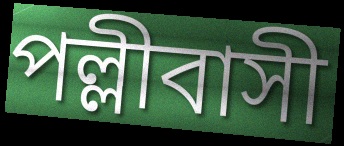
পল্লীবাসী